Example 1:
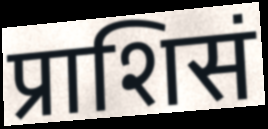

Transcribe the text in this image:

प्राशिसं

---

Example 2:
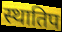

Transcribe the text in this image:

स्थातिप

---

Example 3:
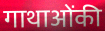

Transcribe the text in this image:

गाथाओंकी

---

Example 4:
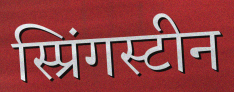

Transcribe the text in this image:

स्प्रिंगस्टीन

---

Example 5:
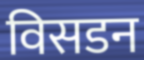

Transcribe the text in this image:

विसडन